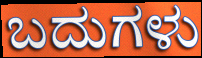
ಬದುಗಳು